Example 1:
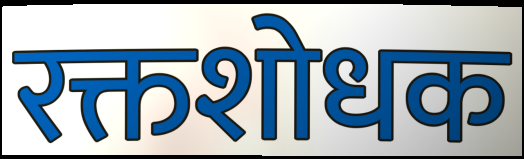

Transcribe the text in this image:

रक्तशोधक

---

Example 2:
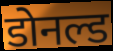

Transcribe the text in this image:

डोनल्‍ड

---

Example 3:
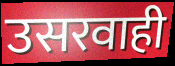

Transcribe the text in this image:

उसरवाही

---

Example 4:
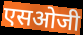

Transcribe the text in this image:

एसओजी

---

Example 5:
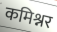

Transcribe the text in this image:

कमिश्नर